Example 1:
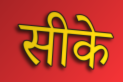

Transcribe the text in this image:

सीके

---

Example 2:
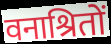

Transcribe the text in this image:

वनाश्रितों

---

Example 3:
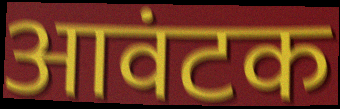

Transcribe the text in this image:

आवंटक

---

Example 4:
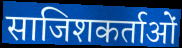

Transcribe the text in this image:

साजिशकर्ताओं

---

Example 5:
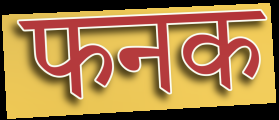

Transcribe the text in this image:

फनक